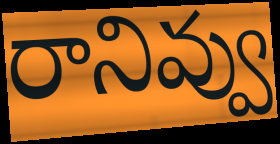
రానివ్వు